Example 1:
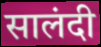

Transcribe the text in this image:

सालंदी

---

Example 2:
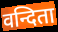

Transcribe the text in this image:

वन्दिता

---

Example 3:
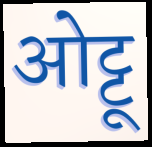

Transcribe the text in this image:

ओट्टू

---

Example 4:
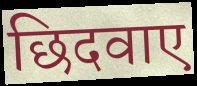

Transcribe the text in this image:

छिदवाए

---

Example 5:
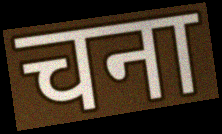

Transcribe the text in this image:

चना